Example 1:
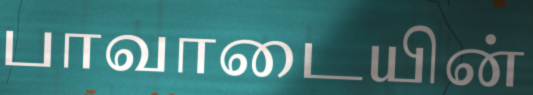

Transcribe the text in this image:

பாவாடையின்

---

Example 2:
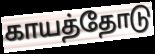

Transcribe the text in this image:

காயத்தோடு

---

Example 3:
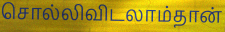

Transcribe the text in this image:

சொல்லிவிடலாம்தான்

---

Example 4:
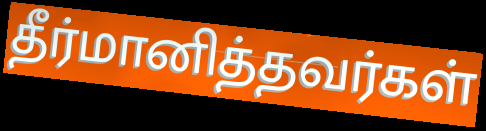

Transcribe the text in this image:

தீர்மானித்தவர்கள்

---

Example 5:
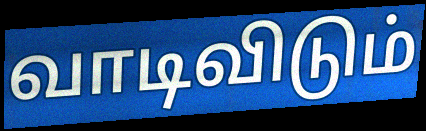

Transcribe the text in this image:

வாடிவிடும்